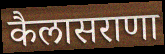
कैलासराणा